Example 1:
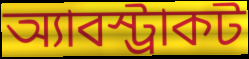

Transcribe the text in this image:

অ্যাবস্ট্রাকট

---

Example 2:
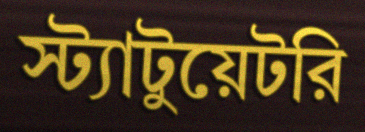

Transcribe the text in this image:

স্ট্যাটুয়েটরি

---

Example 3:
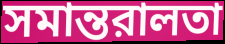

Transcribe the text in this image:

সমান্তরালতা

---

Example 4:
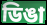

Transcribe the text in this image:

ডিঙা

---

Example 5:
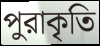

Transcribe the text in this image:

পুরাকৃতি